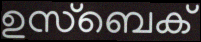
ഉസ്ബെക്